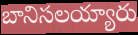
బానిసలయ్యారు